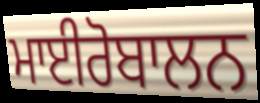
ਮਾਈਰੋਬਾਲਨ